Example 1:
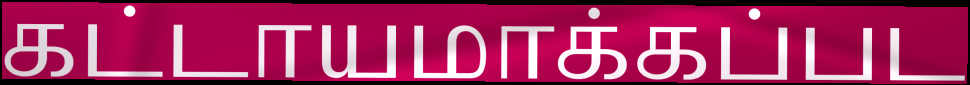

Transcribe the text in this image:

கட்டாயமாக்கப்பட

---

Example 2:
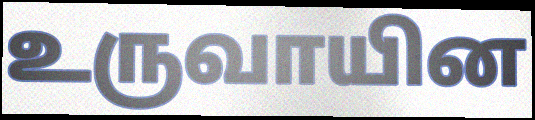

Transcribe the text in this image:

உருவாயின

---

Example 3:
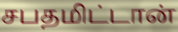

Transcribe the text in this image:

சபதமிட்டான்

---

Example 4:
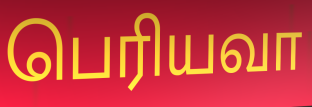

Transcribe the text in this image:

பெரியவா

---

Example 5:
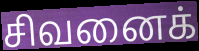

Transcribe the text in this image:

சிவனைக்